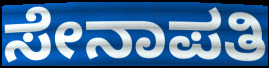
ಸೇನಾಪತಿ